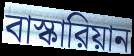
বাস্কারিয়ান